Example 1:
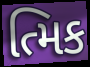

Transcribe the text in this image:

ત્મિક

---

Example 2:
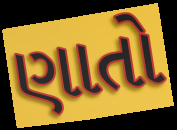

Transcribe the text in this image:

ણાતો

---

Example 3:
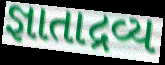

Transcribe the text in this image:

જ્ઞાતાદ્રવ્ય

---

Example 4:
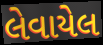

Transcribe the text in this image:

લેવાયેલ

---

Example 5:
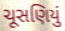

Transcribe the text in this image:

ચૂસણિયું